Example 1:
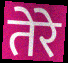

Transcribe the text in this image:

तेरे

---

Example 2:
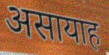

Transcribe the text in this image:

असायाह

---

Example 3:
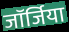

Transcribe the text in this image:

जॉर्जिया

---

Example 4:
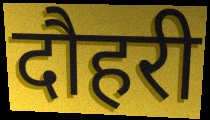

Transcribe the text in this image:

दौहरी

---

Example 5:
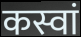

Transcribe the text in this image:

कस्‍वां